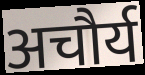
अचौर्य